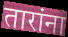
तारांना